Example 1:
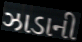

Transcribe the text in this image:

ઝાડાની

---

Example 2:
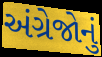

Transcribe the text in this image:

અંગ્રેજોનું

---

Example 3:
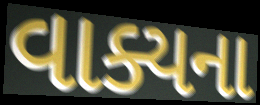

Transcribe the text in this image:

વાક્યના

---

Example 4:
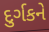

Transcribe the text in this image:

દુર્ગકને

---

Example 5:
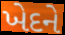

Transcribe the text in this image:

ખેદને